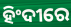
ହିଂଦୀରେ